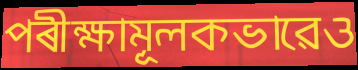
পৰীক্ষামূলকভাৱেও